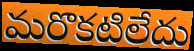
మరొకటిలేదు